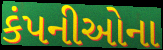
કંપનીઓના